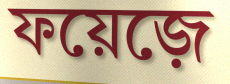
ফয়েজ়ে